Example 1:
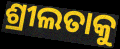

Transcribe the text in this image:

ଶ୍ରୀଲତାକୁ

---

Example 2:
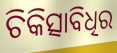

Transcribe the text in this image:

ଚିକିତ୍ସାବିଧିର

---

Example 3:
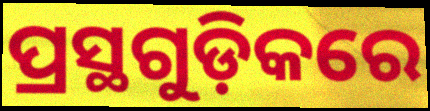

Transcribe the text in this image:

ପ୍ରସ୍ଥଗୁଡ଼ିକରେ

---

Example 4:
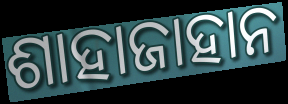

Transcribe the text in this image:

ଶାହାଜାହାନ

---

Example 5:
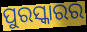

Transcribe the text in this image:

ପୁରସ୍କାରର